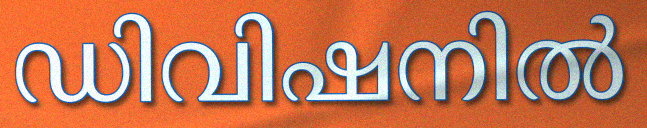
ഡിവിഷനിൽ